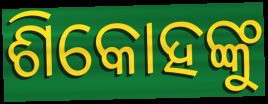
ଶିକୋହଙ୍କୁ